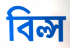
বিল্স